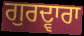
ਗੁਰਦ੍ਵਾਰਾ